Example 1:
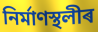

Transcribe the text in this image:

নিৰ্মাণস্থলীৰ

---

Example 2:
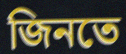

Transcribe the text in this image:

জিনতে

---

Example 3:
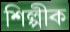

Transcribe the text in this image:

শিল্পীক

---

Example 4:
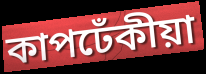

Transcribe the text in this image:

কাপঢেঁকীয়া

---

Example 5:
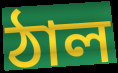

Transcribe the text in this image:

ঠাল